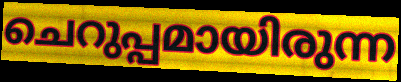
ചെറുപ്പമായിരുന്ന